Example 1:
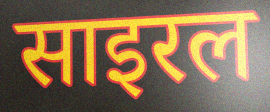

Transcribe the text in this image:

साइरल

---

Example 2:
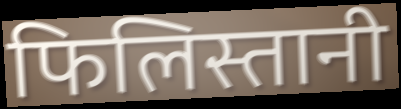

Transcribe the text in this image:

फिलिस्तानी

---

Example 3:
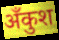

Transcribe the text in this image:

अँकुश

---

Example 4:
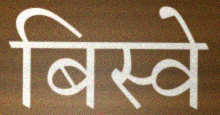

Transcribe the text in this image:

बिस्वे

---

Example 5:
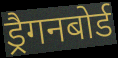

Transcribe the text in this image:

ड्रैगनबोर्ड